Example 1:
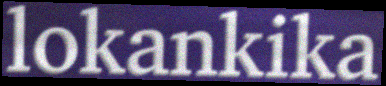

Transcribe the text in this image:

lokankika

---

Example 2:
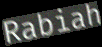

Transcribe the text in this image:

Rabiah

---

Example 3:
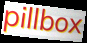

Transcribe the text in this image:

pillbox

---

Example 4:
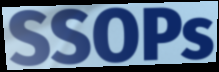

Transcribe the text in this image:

SSOPs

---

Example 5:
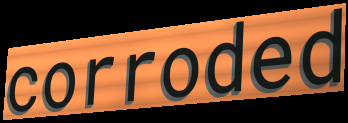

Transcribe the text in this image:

corroded